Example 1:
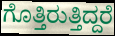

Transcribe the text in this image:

ಗೊತ್ತಿರುತ್ತಿದ್ದರೆ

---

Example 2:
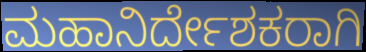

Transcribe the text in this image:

ಮಹಾನಿರ್ದೇಶಕರಾಗಿ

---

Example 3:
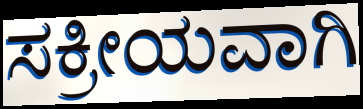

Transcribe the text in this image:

ಸಕ್ರೀಯವಾಗಿ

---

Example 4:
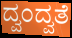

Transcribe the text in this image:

ದ್ವಂದ್ವತೆ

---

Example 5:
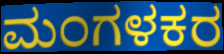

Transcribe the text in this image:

ಮಂಗಳಕರ